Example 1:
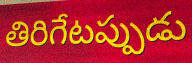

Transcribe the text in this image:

తిరిగేటప్పుడు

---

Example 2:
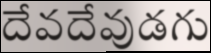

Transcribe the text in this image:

దేవదేవుడగు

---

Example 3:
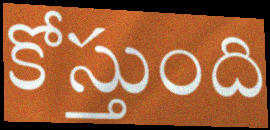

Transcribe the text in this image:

కోస్తుంది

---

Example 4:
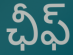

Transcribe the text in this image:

ఛీఫ్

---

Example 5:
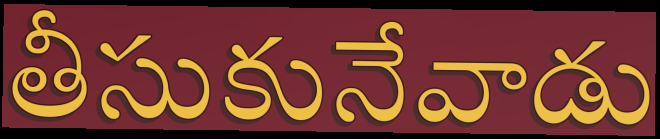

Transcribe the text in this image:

తీసుకునేవాడు